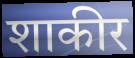
शाकीर